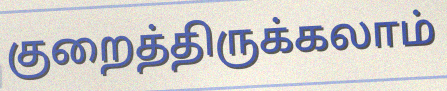
குறைத்திருக்கலாம்